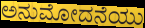
ಅನುಮೋದನೆಯು